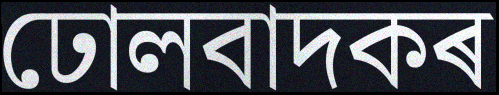
ঢোলবাদকৰ